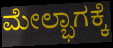
ಮೇಲ್ಭಾಗಕ್ಕೆ